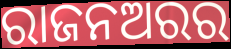
ରାଜନଅରର